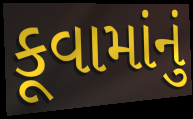
કૂવામાંનું